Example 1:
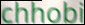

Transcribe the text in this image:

chhobi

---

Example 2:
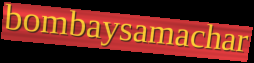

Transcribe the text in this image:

bombaysamachar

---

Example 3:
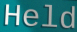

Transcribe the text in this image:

Held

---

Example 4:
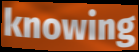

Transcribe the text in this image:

knowing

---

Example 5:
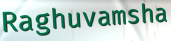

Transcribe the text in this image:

Raghuvamsha